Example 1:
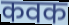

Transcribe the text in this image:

कवक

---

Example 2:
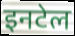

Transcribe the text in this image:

इनटेल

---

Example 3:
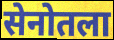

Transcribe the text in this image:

सेनोतला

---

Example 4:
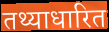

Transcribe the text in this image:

तथ्याधारित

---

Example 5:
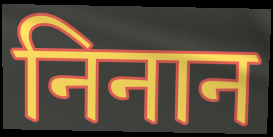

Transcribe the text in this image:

निनान